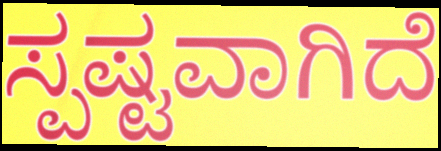
ಸ್ಪಷ್ಟವಾಗಿದೆ